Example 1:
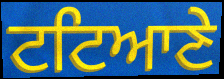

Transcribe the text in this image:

ਟਟਿਆਣੇ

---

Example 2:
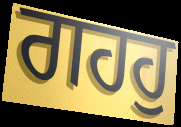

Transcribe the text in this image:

ਗਹਹੁ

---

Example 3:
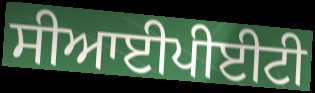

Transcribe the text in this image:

ਸੀਆਈਪੀਈਟੀ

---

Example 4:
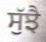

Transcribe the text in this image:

ਸੁੱਝੈ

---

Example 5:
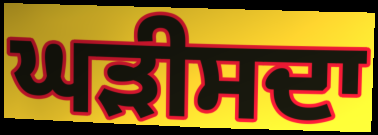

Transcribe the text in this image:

ਘੜੀਸਦਾ